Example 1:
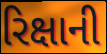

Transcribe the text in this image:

રિક્ષાની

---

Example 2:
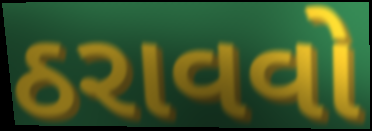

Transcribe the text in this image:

ઠરાવવો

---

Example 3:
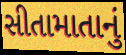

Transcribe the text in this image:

સીતામાતાનું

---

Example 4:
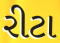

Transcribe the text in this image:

રીટા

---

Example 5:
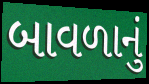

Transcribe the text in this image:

બાવળાનું